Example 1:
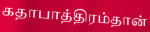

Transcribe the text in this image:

கதாபாத்திரம்தான்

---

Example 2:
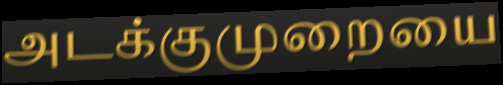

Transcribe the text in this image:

அடக்குமுறையை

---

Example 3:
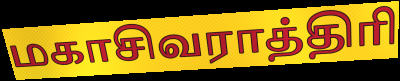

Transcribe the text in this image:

மகாசிவராத்திரி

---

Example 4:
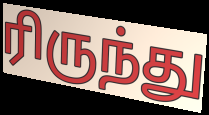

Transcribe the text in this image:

ரிருந்து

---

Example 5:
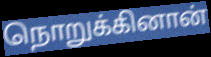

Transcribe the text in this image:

நொறுக்கினான்